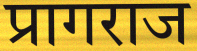
प्रागराज